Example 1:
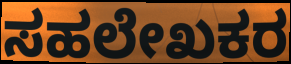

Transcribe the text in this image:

ಸಹಲೇಖಕರ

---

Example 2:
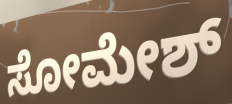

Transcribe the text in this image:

ಸೋಮೇಶ್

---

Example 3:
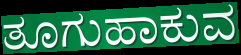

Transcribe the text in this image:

ತೂಗುಹಾಕುವ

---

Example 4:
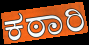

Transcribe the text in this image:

ಕಠಾರಿ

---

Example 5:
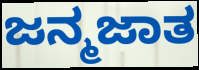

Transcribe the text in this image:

ಜನ್ಮಜಾತ